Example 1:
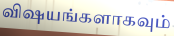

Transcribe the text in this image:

விஷயங்களாகவும்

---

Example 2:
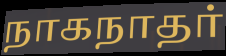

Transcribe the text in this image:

நாகநாதர்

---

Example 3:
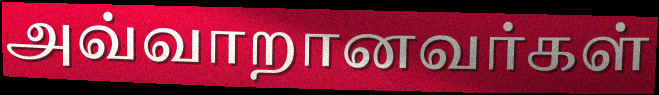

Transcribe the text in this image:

அவ்வாறானவர்கள்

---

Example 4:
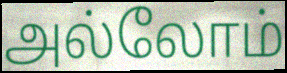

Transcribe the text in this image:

அல்லோம்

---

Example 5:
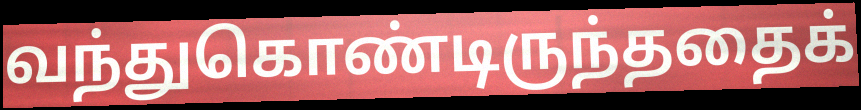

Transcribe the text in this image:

வந்துகொண்டிருந்ததைக்